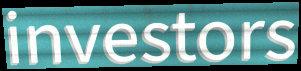
investors